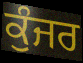
ਕੁੰਜਰ